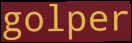
golper